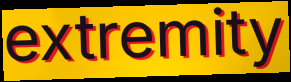
extremity